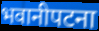
भवानीपटना